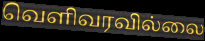
வெளிவரவில்லை